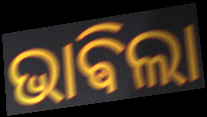
ଭାଵିଲା